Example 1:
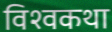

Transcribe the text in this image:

विश्वकथा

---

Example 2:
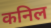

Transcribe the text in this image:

कनिल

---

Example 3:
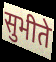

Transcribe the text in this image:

सुभीते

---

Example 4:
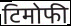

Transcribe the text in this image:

टिमोफी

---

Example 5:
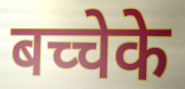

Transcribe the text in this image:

बच्चेके